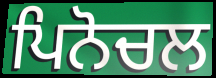
ਪਿਨੋਚਲ